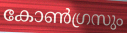
കോൺഗ്രസും